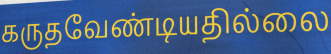
கருதவேண்டியதில்லை